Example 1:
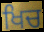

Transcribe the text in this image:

ਖਿਚ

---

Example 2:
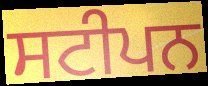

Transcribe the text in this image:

ਸਟੀਪਨ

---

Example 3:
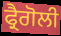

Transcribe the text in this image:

ਫ੍ਰੈਗੋਲੀ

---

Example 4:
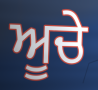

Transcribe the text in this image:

ਅੂਚੇ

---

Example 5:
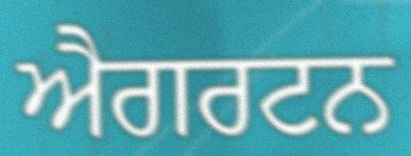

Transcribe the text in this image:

ਐਗਰਟਨ